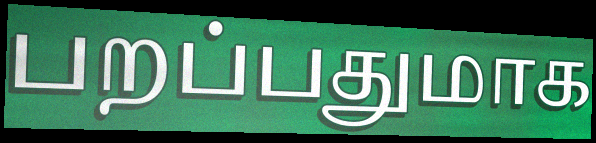
பறப்பதுமாக